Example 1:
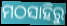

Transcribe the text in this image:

ମଠସାହିରୁ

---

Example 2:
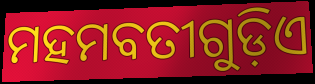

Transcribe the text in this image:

ମହମବତୀଗୁଡ଼ିଏ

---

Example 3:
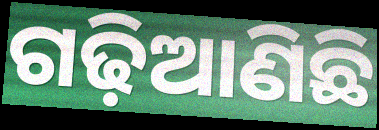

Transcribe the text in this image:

ଗଢ଼ିଆଣିଛି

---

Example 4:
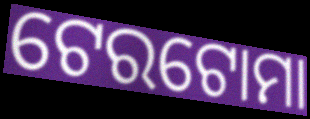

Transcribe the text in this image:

ଟେରଟୋମା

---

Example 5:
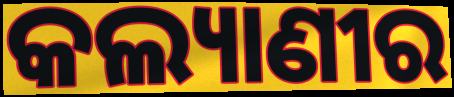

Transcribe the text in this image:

କଲ୍ୟାଣୀର